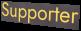
Supporter